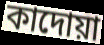
কাদোয়া